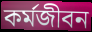
কর্মজীবন